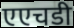
एएचडी